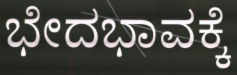
ಭೇದಭಾವಕ್ಕೆ